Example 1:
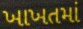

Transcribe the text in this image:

ખાખતમાં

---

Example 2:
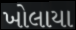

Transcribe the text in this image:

ખોલાયા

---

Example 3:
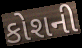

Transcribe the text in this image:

કોશની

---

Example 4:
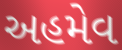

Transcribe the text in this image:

અહમેવ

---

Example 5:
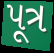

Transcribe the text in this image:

પૂત્ર